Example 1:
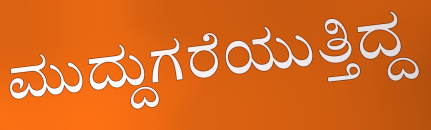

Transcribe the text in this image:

ಮುದ್ದುಗರೆಯುತ್ತಿದ್ದ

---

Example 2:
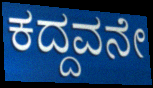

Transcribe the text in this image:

ಕದ್ದವನೇ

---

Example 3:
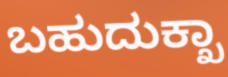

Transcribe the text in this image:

ಬಹುದುಕ್ಖಾ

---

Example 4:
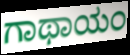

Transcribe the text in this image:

ಗಾಥಾಯಂ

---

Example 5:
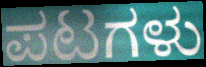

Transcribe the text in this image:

ಪಟಗಳು